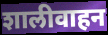
शालीवाहन